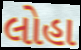
લોહા